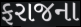
ફરાજના